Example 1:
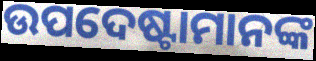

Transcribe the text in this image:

ଉପଦେଷ୍ଟାମାନଙ୍କ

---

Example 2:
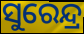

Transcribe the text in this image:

ସୁରେନ୍ଦ୍ର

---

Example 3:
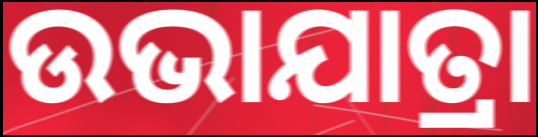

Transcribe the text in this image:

ଉଭାଯାତ୍ରା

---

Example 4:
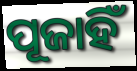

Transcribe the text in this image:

ପୂଜାହିଁ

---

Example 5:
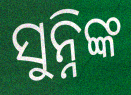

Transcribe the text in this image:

ସୁନ୍ନିଙ୍କ